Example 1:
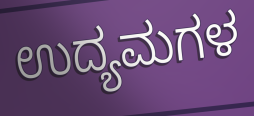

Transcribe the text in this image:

ಉದ್ಯಮಗಳ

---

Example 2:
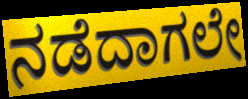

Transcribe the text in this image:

ನಡೆದಾಗಲೇ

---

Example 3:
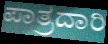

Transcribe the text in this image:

ಪಾತ್ರದಾರಿ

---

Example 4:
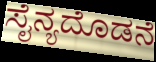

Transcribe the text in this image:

ಸೈನ್ಯದೊಡನೆ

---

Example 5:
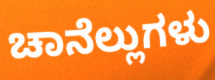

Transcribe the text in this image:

ಚಾನೆಲ್ಲುಗಳು